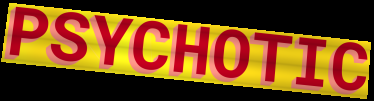
PSYCHOTIC